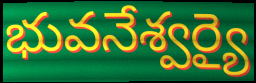
భువనేశ్వర్యై